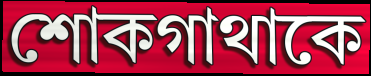
শোকগাথাকে